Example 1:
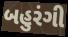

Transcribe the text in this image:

બહુરંગી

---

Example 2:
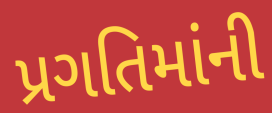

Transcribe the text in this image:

પ્રગતિમાંની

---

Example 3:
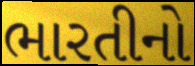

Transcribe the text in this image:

ભારતીનો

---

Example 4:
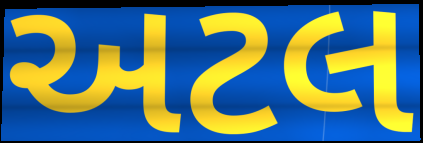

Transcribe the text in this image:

અટલ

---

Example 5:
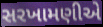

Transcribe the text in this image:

સરખામણીએ